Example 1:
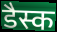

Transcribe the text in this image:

डैस्क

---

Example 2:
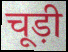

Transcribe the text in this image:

चूड़ी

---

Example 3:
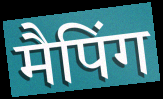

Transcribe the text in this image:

मैपिंग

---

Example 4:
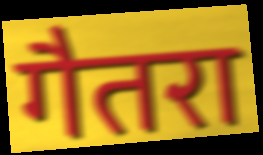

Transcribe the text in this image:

गैतरा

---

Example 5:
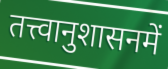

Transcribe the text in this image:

तत्त्वानुशासनमें